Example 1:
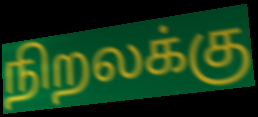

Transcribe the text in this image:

நிறலக்கு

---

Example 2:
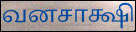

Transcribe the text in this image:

வனசாக்ஷி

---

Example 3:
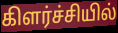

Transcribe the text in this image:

கிளர்ச்சியில்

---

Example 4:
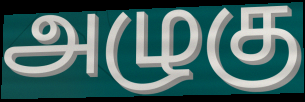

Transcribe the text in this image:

அழுகு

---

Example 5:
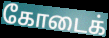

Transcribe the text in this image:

கோடைக்